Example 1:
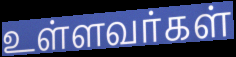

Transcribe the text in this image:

உள்ளவர்கள்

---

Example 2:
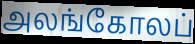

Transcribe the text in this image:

அலங்கோலப்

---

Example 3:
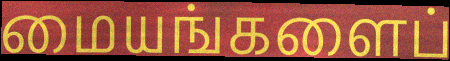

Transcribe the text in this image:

மையங்களைப்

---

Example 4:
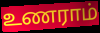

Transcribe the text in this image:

உணராம்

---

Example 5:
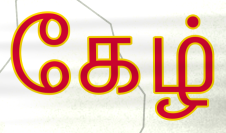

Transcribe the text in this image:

கேழ்